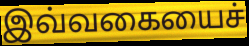
இவ்வகையைச்